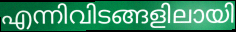
എന്നിവിടങ്ങളിലായി